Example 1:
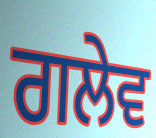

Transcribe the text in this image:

ਗਲੇਵ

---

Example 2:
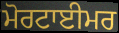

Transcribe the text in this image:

ਮੋਰਟਾਈਮਰ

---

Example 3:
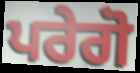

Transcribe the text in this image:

ਪਰੇਗੋ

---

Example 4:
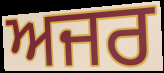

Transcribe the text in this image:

ਅਜਰ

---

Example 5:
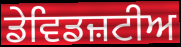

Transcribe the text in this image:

ਡੇਵਿਡਜ਼ਟੀਅ